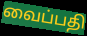
வைப்பதி